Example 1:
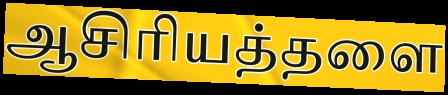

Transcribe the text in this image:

ஆசிரியத்தளை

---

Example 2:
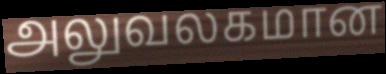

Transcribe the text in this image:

அலுவலகமான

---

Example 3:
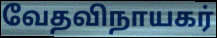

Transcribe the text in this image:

வேதவிநாயகர்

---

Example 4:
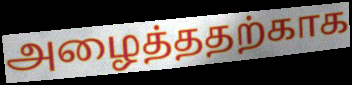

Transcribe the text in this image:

அழைத்ததற்காக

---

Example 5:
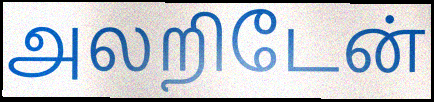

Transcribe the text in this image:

அலறிடேன்